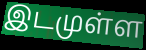
இடமுள்ள